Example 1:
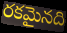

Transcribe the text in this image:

రకమైనది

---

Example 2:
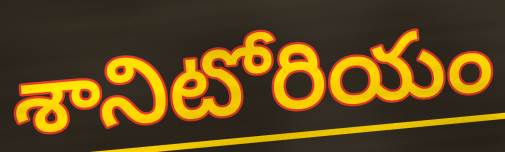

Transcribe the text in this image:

శానిటోరియం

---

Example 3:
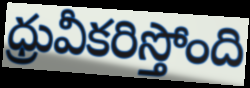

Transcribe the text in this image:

ధ్రువీకరిస్తోంది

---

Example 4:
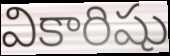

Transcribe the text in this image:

వికారిషు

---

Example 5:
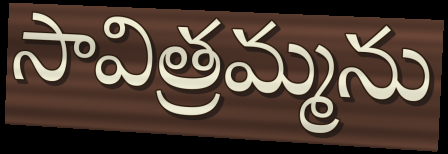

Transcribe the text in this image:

సావిత్రమ్మను